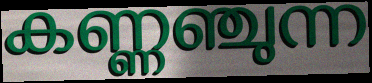
കണ്ണഞ്ചുന്ന